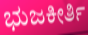
ಭುಜಕೀರ್ತಿ